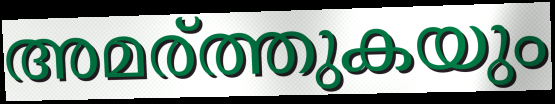
അമര്ത്തുകയും